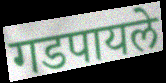
गडपायले